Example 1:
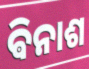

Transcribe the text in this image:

ଵିନାଶ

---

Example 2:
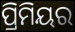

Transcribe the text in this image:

ପ୍ରିମିୟର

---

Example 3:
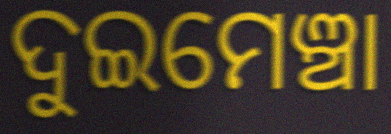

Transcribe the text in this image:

ଦୁଇମେଞ୍ଚା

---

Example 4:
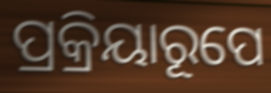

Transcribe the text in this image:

ପ୍ରକ୍ରିୟାରୂପେ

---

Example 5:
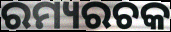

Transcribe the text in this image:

ରମ୍ୟରଚକ